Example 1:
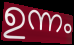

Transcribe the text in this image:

ഉന്നം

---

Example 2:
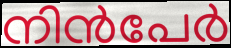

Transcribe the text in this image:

നിൻപേർ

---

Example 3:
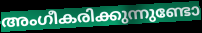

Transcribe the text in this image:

അംഗീകരിക്കുന്നുണ്ടോ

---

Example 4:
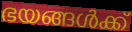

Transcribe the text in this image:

ഭയങ്ങൾക്ക്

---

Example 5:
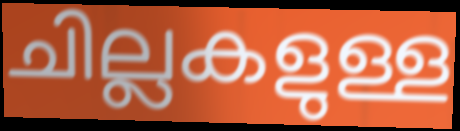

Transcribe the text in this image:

ചില്ലകളുള്ള